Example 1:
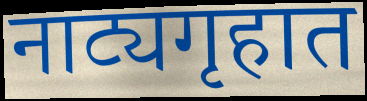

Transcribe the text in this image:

नाट्यगृहात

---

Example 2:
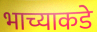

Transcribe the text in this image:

भाच्याकडे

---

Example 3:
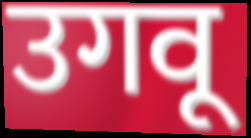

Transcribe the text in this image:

उगवू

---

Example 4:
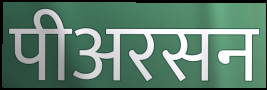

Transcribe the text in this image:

पीअरसन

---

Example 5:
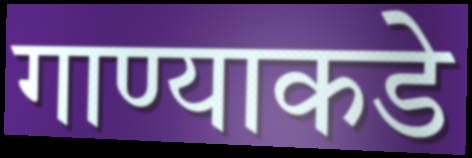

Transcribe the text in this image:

गाण्याकडे